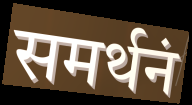
समर्थनं